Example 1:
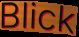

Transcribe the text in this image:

Blick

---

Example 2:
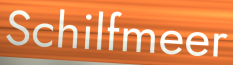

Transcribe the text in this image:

Schilfmeer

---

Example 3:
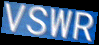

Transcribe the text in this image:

VSWR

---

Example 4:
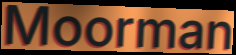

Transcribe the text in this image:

Moorman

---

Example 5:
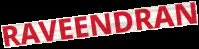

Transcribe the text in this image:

RAVEENDRAN